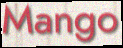
Mango